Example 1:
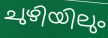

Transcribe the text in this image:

ചുഴിയിലും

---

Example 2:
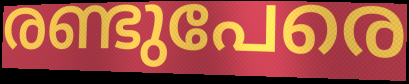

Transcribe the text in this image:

രണ്ടുപേരെ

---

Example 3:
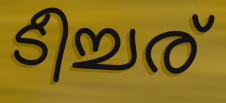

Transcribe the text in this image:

ടീച്ചര്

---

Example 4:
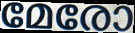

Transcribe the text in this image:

മേരോ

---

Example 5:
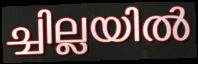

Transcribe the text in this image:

ച്ചില്ലയിൽ